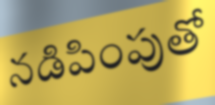
నడిపింపుతో